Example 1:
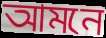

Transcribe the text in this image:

আমনে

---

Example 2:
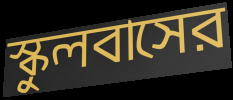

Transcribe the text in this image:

স্কুলবাসের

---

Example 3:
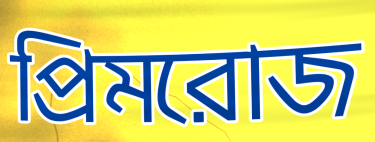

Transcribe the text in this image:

প্রিমরোজ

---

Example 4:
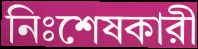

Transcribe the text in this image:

নিঃশেষকারী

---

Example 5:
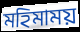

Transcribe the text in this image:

মহিমাময়